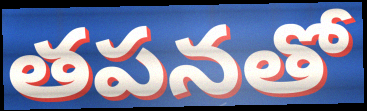
తపనతో